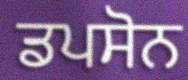
ਡਪਸੋਨ